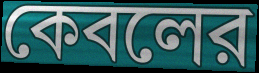
কেবলের